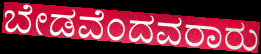
ಬೇಡವೆಂದವರಾರು